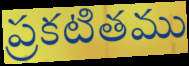
ప్రకటితము